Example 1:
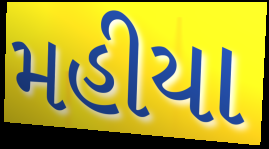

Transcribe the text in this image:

મહીયા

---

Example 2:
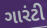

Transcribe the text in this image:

ગારંટી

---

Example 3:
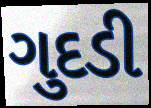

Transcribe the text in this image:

ગુદડી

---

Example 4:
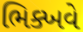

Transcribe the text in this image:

ભિક્ખવે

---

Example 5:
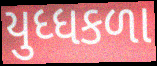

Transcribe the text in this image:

યુધ્ધકળા